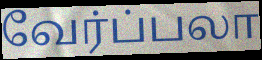
வேர்ப்பலா